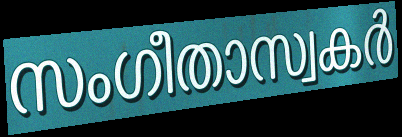
സംഗീതാസ്വകർ